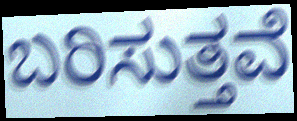
ಬರಿಸುತ್ತವೆ